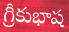
గ్రీకుభాష